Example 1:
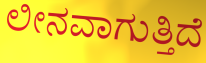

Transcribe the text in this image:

ಲೀನವಾಗುತ್ತಿದೆ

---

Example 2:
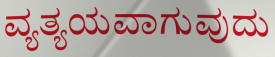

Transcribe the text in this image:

ವ್ಯತ್ಯಯವಾಗುವುದು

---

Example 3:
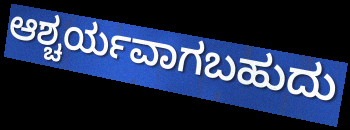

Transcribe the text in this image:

ಆಶ್ಚರ್ಯವಾಗಬಹುದು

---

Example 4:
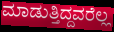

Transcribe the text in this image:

ಮಾಡುತ್ತಿದ್ದವರೆಲ್ಲ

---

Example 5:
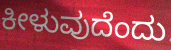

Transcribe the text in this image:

ಕೀಳುವುದೆಂದು